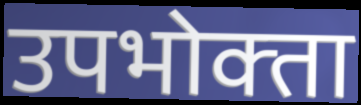
उपभोक्‍ता